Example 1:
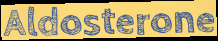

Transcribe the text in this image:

Aldosterone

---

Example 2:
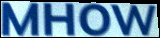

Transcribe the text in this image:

MHOW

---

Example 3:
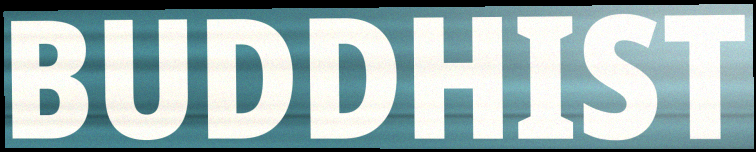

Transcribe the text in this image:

BUDDHIST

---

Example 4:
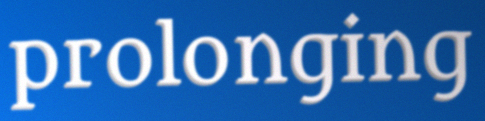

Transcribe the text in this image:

prolonging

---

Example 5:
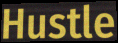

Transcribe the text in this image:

Hustle